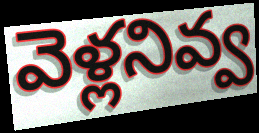
వెళ్లనివ్వ